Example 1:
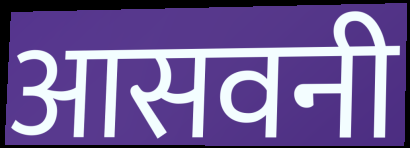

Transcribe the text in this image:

आसवनी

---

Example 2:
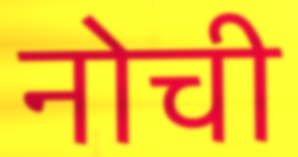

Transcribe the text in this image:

नोची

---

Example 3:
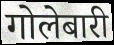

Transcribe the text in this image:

गोलेबारी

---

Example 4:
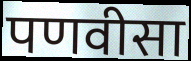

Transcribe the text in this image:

पणवीसा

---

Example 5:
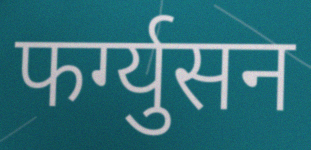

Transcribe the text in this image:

फर्ग्युसन